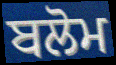
ਬਲੋਮ